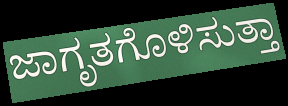
ಜಾಗೃತಗೊಳಿಸುತ್ತಾ